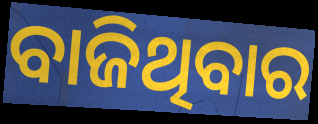
ବାଜିଥିବାର